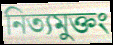
নিত্যমুক্তং